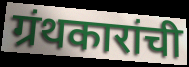
ग्रंथकारांची